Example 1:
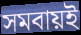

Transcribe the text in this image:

সমবায়ই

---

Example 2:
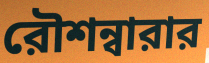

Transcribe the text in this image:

রৌশন্বারার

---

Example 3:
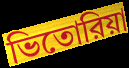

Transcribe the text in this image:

ভিতোরিয়া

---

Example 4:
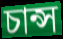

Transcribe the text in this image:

চান্স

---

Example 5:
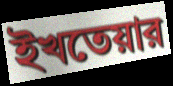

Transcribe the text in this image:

ইখতেয়ার